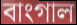
বাংগাল